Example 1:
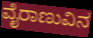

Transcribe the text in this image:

ವೈರಾಣುವಿನ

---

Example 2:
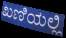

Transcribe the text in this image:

ಖಣಿಯಲ್ಲಿ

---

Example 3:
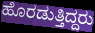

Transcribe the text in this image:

ಹೊರಡುತ್ತಿದ್ದರು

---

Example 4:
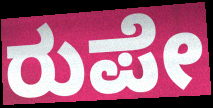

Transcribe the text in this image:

ರುಪೇ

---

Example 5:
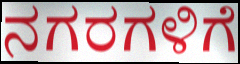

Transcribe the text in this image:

ನಗರಗಳಿಗೆ